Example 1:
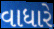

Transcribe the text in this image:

વાધારે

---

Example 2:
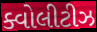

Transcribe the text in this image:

ક્વોલીટીઝ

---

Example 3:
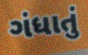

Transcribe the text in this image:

ગંધાતું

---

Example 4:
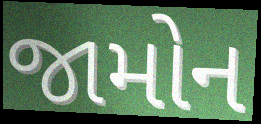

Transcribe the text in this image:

જામોન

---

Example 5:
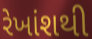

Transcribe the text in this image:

રેખાંશથી